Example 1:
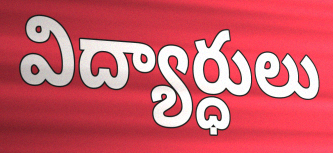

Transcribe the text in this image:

విద్యార్ధులు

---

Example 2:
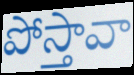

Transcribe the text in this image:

పోస్తావా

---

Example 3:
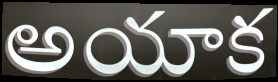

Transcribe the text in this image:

అయాక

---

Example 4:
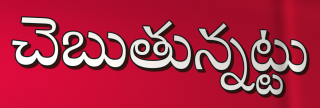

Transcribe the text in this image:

చెబుతున్నట్టు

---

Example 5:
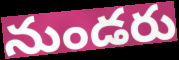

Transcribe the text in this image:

నుండరు